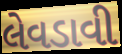
લેવડાવી